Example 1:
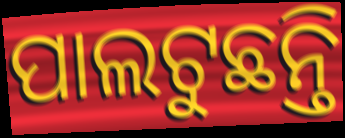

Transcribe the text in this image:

ପାଲଟୁଛନ୍ତି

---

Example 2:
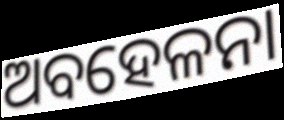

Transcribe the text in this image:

ଅବହେଳନା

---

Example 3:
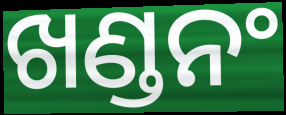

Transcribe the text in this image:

ଖଣ୍ଡନଂ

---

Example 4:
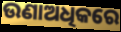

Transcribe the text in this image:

ଉଣାଅଧିକରେ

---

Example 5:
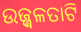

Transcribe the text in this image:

ଉଜ୍ଜ୍ୱଳତାଟି